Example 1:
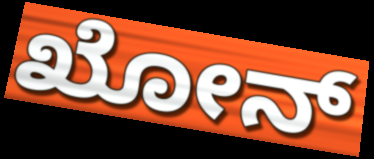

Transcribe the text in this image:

ಖೋನ್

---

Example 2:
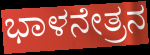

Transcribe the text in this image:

ಭಾಳನೇತ್ರನ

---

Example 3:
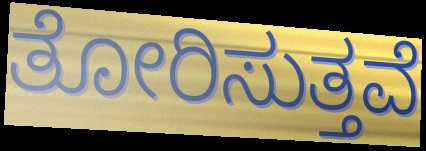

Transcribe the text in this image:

ತೋರಿಸುತ್ತವೆ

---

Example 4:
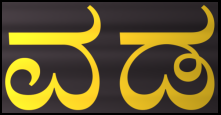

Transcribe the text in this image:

ವಡ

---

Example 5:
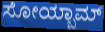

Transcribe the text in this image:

ಸೋಯ್ಬಾಮ್